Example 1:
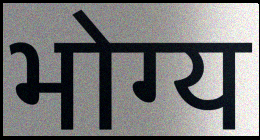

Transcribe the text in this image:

भोग्य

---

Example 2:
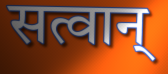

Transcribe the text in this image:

सत्वान्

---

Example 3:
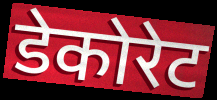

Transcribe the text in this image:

डेकोरेट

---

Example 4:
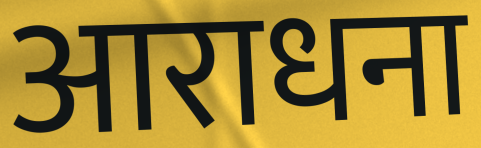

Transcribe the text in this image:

आराधना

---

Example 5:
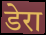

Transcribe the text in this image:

डेरा